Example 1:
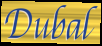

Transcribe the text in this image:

Dubal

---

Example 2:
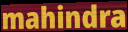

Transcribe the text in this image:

mahindra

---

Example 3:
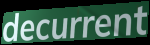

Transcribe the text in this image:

decurrent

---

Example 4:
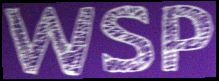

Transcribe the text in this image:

WSP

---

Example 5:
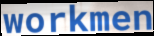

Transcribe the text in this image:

workmen